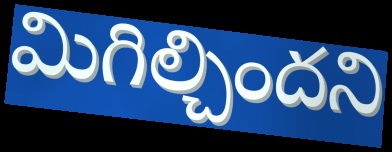
మిగిల్చిందని